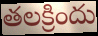
తలక్రిందు